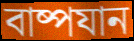
বাষ্পযান